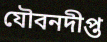
যৌবনদীপ্ত